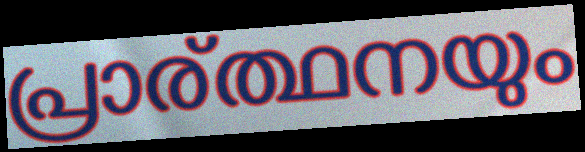
പ്രാര്ത്ഥനയും